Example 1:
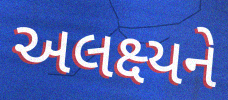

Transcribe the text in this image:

અલક્ષ્યને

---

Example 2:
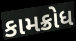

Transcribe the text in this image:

કામક્રોધ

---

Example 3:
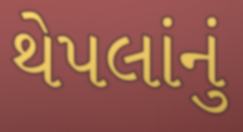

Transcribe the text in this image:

થેપલાંનું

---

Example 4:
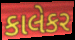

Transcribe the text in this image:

કાલેકર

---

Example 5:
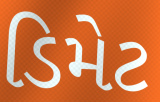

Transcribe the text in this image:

ડિમેટ